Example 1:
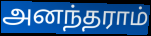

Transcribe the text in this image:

அனந்தராம்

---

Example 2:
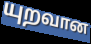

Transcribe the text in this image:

யுறவான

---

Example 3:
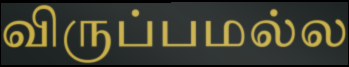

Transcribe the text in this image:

விருப்பமல்ல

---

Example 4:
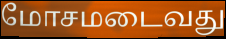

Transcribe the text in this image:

மோசமடைவது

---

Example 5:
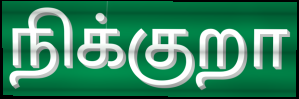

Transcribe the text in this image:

நிக்குறா